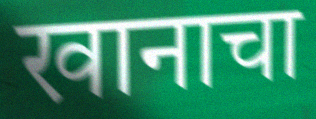
खानाचा